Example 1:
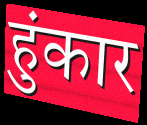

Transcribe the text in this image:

हुंकार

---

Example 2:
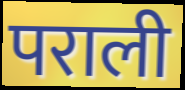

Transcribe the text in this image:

पराली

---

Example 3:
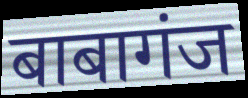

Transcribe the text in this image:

बाबागंज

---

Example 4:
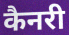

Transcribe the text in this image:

कैनरी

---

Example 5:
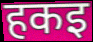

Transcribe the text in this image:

हकइ